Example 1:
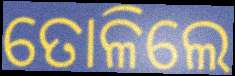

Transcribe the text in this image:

ତୋଳିଲେ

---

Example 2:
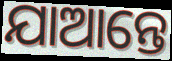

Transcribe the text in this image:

ଯାଆନ୍ତେ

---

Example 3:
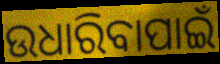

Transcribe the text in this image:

ଉଧାରିବାପାଇଁ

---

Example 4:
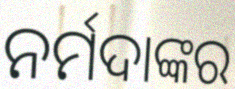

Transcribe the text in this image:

ନର୍ମଦାଙ୍କର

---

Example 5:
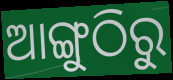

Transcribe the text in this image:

ଆଙ୍ଗୁଠିରୁ